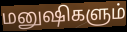
மனுஷிகளும்